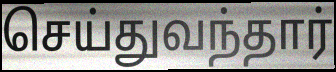
செய்துவந்தார்